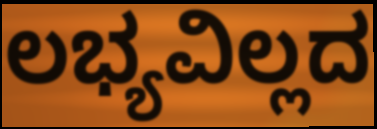
ಲಭ್ಯವಿಲ್ಲದ